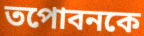
তপোবনকে